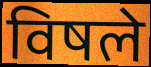
विषले